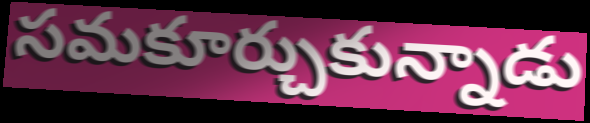
సమకూర్చుకున్నాడు